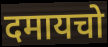
दमायचो